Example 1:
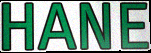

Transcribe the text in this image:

HANE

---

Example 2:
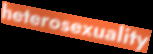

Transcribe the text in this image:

heterosexuality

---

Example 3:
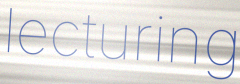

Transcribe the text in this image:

lecturing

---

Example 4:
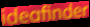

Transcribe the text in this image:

ideafinder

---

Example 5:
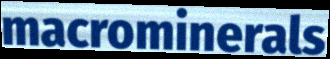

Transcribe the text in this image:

macrominerals